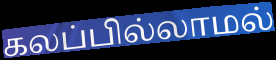
கலப்பில்லாமல்